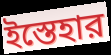
ইস্তেহার